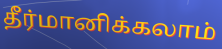
தீர்மானிக்கலாம்